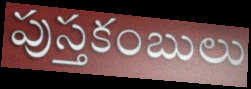
పుస్తకంబులు